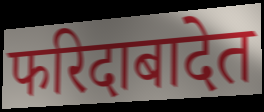
फरिदाबादेत